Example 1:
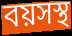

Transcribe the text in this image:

বয়সস্থ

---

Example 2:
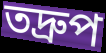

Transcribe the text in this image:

তদ্ৰুপ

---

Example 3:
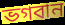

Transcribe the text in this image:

ভগবান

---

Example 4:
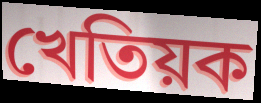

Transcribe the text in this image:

খেতিয়ক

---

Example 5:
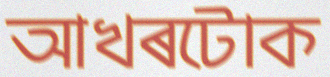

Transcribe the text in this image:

আখৰটোক